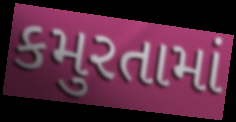
કમુરતામાં